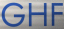
GHF